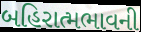
બહિરાત્મભાવની